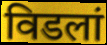
विडलां